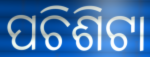
ପଚିଶିଟା